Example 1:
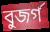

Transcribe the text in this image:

বুজর্গ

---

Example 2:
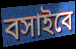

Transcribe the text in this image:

বসাইবে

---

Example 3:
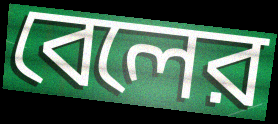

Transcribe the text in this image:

বেলের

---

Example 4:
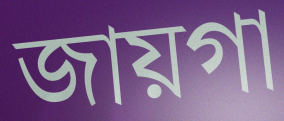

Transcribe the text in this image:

জায়গা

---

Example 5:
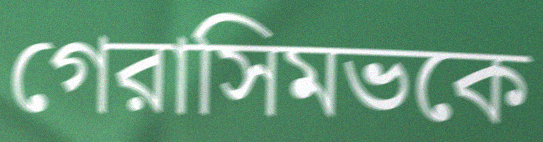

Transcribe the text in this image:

গেরাসিমভকে